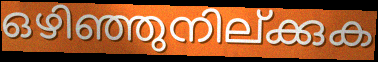
ഒഴിഞ്ഞുനില്ക്കുക